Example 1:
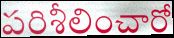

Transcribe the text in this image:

పరిశీలించారో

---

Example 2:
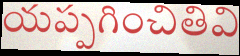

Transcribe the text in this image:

యప్పగించితివి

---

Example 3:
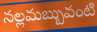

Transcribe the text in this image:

నల్లమబ్బువంటి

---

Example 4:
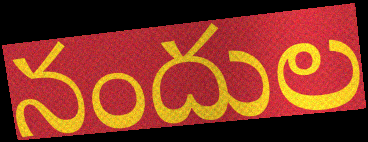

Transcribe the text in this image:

నందుల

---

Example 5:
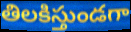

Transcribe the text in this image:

తిలకిస్తుండగా